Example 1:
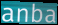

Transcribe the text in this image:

anba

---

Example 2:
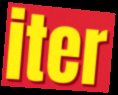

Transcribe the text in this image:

iter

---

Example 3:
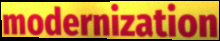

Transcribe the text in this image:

modernization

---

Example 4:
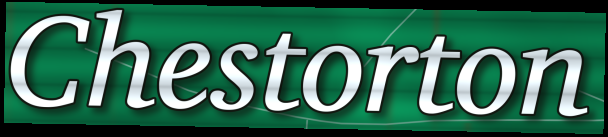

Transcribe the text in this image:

Chestorton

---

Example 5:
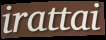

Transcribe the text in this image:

irattai